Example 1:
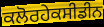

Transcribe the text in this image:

ਕਲੋਰਹੇਕਸੀਡੀਨ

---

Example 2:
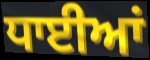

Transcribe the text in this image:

ਧਾਈਆਂ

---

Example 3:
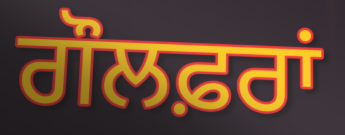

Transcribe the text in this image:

ਗੌਲਫ਼ਰਾਂ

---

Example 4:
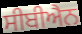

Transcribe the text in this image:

ਸੀਬੀਐਨ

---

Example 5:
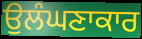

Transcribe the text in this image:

ਉਲੰਘਣਾਕਾਰ